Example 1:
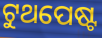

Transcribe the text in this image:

ଟୁଥପେଷ୍ଟ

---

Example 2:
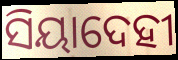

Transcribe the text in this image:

ସିୟାଦେହୀ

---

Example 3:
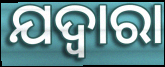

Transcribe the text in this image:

ଯଦ୍ୱାରା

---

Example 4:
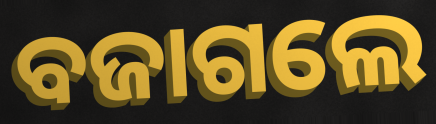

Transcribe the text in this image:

ବଜାଗଲେ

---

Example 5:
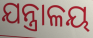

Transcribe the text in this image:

ଯନ୍ତ୍ରାଳୟ